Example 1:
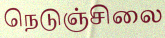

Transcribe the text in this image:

நெடுஞ்சிலை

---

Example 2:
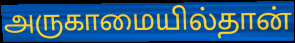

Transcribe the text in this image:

அருகாமையில்தான்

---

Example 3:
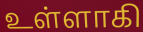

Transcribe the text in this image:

உள்ளாகி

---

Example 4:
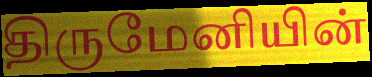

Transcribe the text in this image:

திருமேனியின்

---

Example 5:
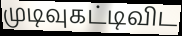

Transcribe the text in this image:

முடிவுகட்டிவிட